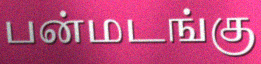
பன்மடங்கு